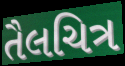
તૈલચિત્ર